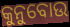
କୁନୁବୋଉ